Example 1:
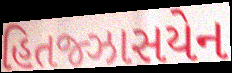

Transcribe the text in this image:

હિતજ્ઝાસયેન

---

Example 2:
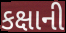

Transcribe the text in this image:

કક્ષાની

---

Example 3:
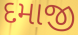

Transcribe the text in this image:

દમાજી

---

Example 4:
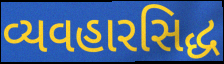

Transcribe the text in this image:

વ્યવહારસિદ્ધ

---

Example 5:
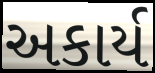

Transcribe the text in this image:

અકાર્ય